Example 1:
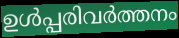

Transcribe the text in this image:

ഉൾപ്പരിവർത്തനം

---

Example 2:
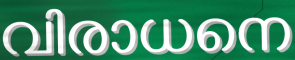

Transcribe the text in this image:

വിരാധനെ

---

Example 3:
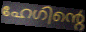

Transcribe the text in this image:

ഹേഗിന്റെ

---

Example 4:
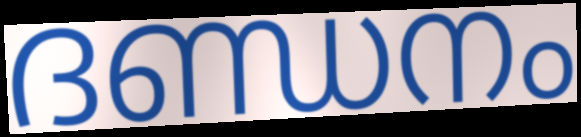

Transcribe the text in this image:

ദണ്ഡനം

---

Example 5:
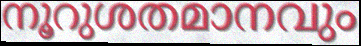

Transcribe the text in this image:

നൂറുശതമാനവും